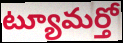
ట్యూమర్తో